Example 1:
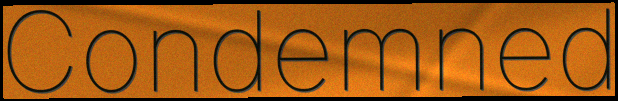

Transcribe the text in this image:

Condemned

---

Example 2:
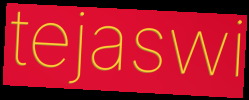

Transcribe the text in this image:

tejaswi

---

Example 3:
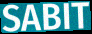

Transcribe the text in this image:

SABIT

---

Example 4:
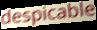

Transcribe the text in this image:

despicable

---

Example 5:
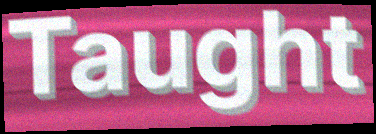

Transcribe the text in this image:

Taught